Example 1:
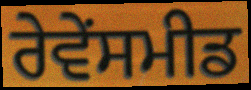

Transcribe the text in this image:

ਰੇਵੇਂਸਮੀਡ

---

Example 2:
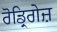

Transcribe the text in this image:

ਰੋਡ੍ਰਿਗੇਜ਼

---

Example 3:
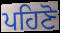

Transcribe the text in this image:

ਪਹਿਣੋ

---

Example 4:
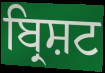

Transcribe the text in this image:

ਬ੍ਰਿਸ਼ਟ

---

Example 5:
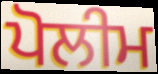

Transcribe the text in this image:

ਪੋਲੀਮ